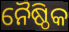
ନୈଷ୍ଠିକ